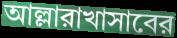
আল্লারাখাসাবের